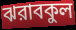
ঝরাবকুল